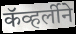
कॅव्हर्लीने